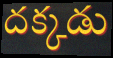
దక్కడు